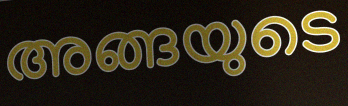
അങ്ങയുടെ